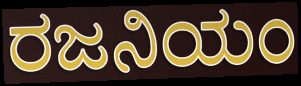
ರಜನಿಯಂ